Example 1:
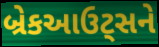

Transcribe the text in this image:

બ્રેકઆઉટ્સને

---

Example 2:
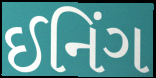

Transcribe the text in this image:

ઈનિંગ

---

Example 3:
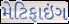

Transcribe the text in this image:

મેટિફાઇંગ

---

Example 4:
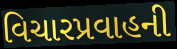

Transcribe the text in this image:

વિચારપ્રવાહની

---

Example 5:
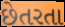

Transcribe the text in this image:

છેતરતા